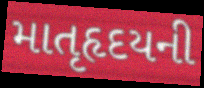
માતૃહૃદયની